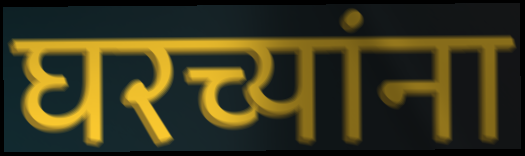
घरच्‍यांना